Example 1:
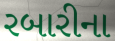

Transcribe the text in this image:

રબારીના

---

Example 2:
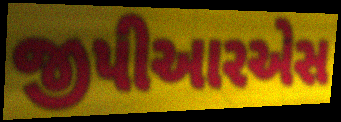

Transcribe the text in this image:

જીપીઆરએસ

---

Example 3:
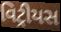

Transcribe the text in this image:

વિટ્રીયસ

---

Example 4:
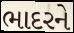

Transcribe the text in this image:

ભાદરને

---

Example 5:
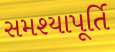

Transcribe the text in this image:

સમશ્યાપૂર્તિ